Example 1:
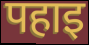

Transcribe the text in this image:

पहाइ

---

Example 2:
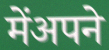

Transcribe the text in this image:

मेंअपने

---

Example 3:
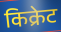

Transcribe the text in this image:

किक्रेट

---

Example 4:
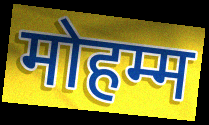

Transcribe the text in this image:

मोहम्म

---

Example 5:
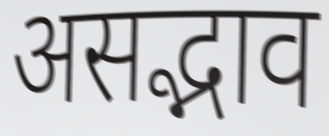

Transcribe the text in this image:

असद्भाव